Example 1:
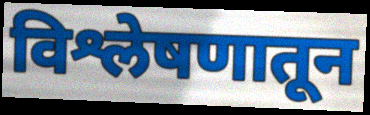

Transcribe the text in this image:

विश्लेषणातून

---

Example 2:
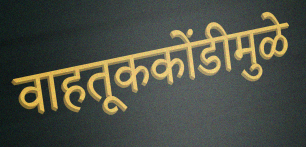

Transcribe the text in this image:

वाहतूककोंडीमुळे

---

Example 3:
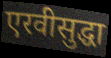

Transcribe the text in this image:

एरवीसुद्धा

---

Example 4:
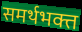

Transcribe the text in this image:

समर्थभक्त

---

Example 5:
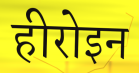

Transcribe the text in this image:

हीरोइन